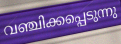
വഞ്ചിക്കപ്പെടുന്നു